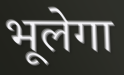
भूलेगा